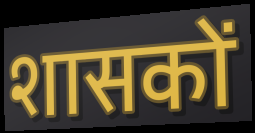
शासकों